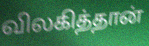
விலகித்தான்